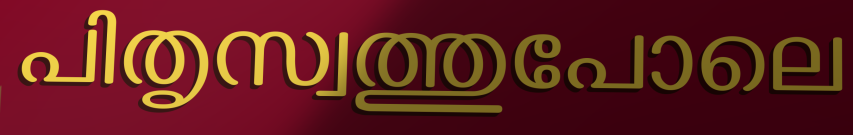
പിതൃസ്വത്തുപോലെ